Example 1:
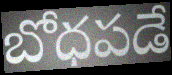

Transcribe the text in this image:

బోధపడే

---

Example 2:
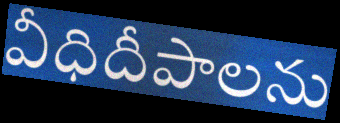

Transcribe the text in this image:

వీధిదీపాలను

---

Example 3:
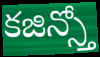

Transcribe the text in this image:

కజిన్స్తో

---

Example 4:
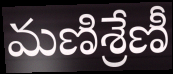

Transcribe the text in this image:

మణిశ్రేణీ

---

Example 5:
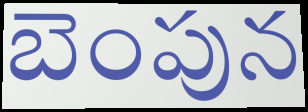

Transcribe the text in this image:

బెంపున